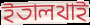
ইতালথাই